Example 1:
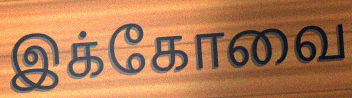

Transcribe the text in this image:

இக்கோவை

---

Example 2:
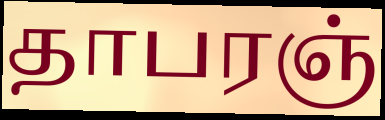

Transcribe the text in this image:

தாபரஞ்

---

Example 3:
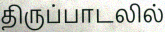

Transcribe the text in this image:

திருப்பாடலில்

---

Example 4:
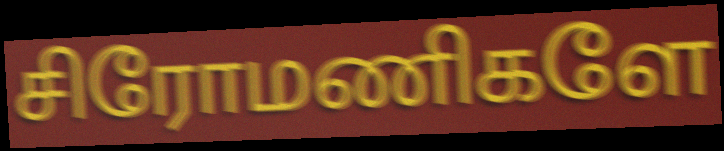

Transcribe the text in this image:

சிரோமணிகளே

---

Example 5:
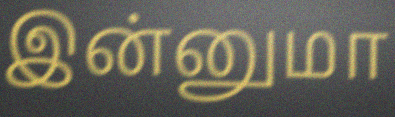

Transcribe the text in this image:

இன்னுமா